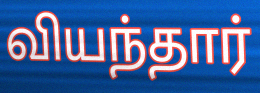
வியந்தார்